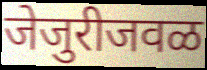
जेजुरीजवळ